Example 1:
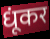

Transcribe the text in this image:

धूंकर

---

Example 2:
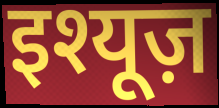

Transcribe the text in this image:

इश्यूज़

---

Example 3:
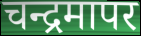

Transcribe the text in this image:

चन्द्रमापर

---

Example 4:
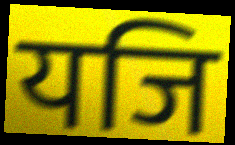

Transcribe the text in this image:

यजि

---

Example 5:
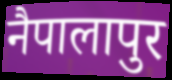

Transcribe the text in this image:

नैपालापुर